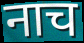
नाच